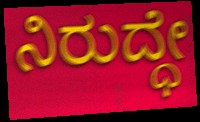
ನಿರುದ್ಧೇ